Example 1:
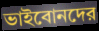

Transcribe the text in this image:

ভাইবোনদের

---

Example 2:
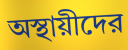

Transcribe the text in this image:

অস্থায়ীদের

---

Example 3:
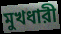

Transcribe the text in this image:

মুখধারী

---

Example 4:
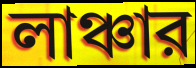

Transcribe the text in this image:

লাঞ্চার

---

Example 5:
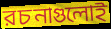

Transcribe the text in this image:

রচনাগুলোই